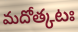
మదోత్కటః